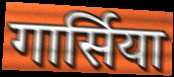
गार्सिया